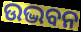
ଉଦ୍ଭବନ